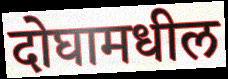
दोघामधील